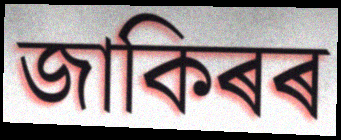
জাকিৰৰ